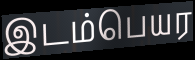
இடம்பெயர